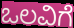
ಒಲವಿಗೆ